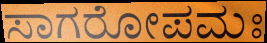
ಸಾಗರೋಪಮಃ